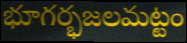
భూగర్భజలమట్టం